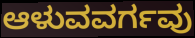
ಆಳುವವರ್ಗವು